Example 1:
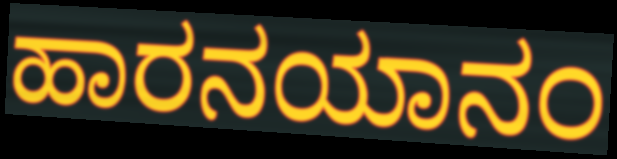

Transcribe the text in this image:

ಹಾರನಯಾನಂ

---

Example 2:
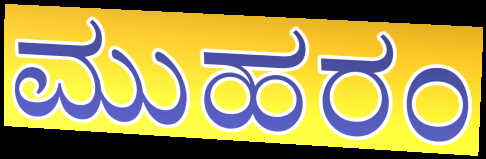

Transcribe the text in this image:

ಮುಹರಂ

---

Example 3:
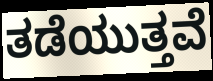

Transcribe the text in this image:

ತಡೆಯುತ್ತವೆ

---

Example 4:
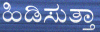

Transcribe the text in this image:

ಹಿಡಿಸುತ್ತಾ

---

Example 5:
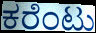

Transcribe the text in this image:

ಕರೆಂಟು